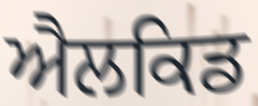
ਐਲਕਿਡ